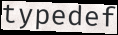
typedef